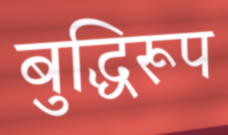
बुद्धिरूप